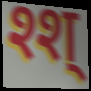
श्श्